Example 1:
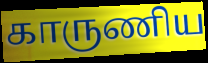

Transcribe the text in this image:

காருணிய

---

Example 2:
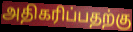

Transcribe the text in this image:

அதிகரிப்பதற்கு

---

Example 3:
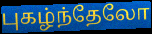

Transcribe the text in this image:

புகழ்ந்தேலோ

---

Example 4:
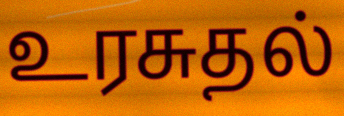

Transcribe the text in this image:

உரசுதல்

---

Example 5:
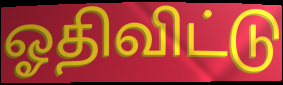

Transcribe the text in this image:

ஓதிவிட்டு